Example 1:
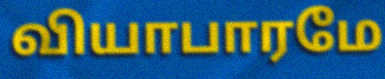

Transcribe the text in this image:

வியாபாரமே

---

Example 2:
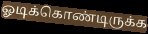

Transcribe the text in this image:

ஓடிக்கொண்டிருக்க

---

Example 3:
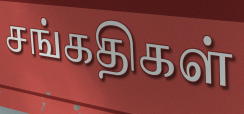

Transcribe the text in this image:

சங்கதிகள்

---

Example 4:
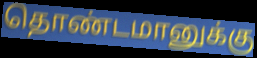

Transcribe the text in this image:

தொண்டமானுக்கு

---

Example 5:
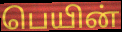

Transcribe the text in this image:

பெயின்